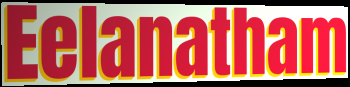
Eelanatham